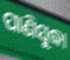
ପାଣିସୁଦ୍ଧା